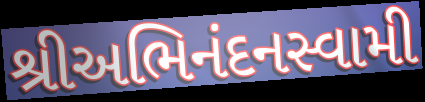
શ્રીઅભિનંદનસ્વામી